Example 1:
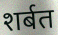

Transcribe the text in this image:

शर्बत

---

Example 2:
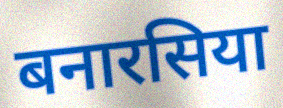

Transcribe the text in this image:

बनारसिया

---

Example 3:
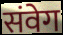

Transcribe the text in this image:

संवेग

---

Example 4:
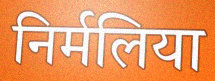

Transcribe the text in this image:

निर्मलिया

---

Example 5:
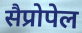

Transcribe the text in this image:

सैप्रोपेल